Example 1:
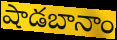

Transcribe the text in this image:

షాడబానాం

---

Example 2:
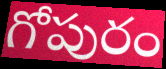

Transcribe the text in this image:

గోపురం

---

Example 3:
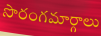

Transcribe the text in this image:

సొరంగమార్గాలు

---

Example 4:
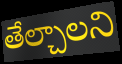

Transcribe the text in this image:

తేల్చాలని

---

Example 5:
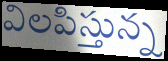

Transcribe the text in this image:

విలపిస్తున్న